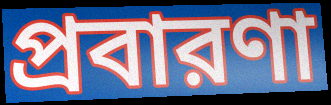
প্রবারণা